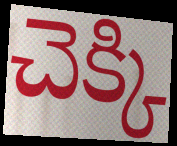
చెక్కి